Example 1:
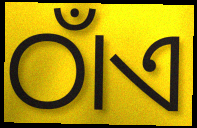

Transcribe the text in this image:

ଠାଁଏ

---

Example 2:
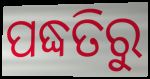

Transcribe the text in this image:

ପଦ୍ଧତିରୁ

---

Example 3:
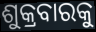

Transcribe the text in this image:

ଶୁକ୍ରବାରକୁ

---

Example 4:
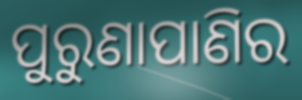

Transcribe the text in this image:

ପୁରୁଣାପାଣିର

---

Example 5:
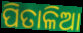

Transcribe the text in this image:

ପିତାଳିଆ